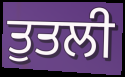
ਤੁਤਲੀ